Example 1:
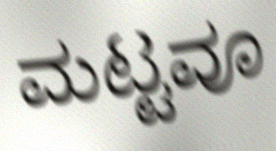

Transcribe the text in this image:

ಮಟ್ಟವೂ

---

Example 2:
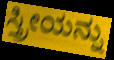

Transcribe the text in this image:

ಸ್ತ್ರೀಯನ್ನು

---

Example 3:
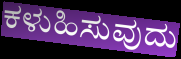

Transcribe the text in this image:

ಕಳುಹಿಸುವುದು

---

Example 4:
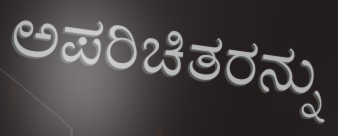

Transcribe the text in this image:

ಅಪರಿಚಿತರನ್ನು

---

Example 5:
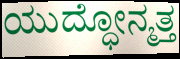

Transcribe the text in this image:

ಯುದ್ಧೋನ್ಮತ್ತ